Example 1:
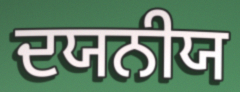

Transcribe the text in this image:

ਦਯਨੀਯ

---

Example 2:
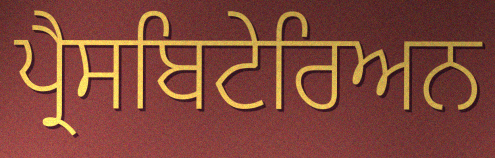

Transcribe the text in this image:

ਪ੍ਰੈਸਬਿਟੇਰਿਅਨ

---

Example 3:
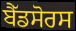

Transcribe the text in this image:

ਬੈੱਡਸੋਰਸ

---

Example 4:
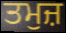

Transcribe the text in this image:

ਤਮੁਜ਼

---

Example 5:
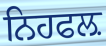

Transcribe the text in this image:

ਨਿਹਫਲ਼